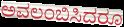
ಅವಲಂಬಿಸಿದರೂ